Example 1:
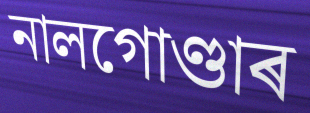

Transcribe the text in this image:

নালগোণ্ডাৰ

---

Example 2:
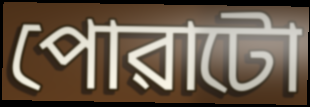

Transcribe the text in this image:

পোৱাটো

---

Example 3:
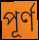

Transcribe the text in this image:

পূৰ্ণ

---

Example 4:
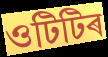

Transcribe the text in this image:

ওটিটিৰ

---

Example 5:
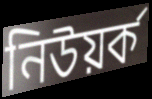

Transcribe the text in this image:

নিউয়ৰ্ক